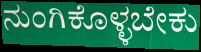
ನುಂಗಿಕೊಳ್ಳಬೇಕು